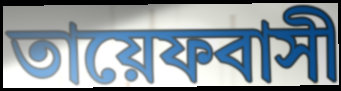
তায়েফবাসী